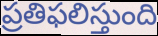
ప్రతిఫలిస్తుంది